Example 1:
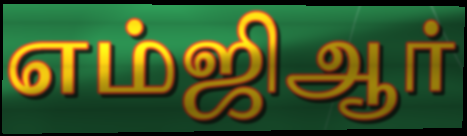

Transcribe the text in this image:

எம்ஜிஆர்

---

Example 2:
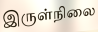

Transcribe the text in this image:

இருள்நிலை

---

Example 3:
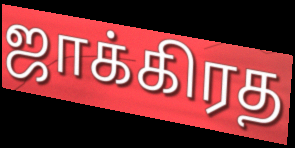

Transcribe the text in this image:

ஜாக்கிரத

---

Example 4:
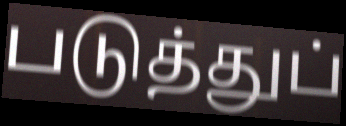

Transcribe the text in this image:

படுத்துப்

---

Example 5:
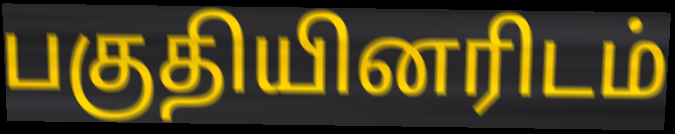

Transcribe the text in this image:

பகுதியினரிடம்